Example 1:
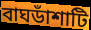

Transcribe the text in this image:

বাঘডাঁশাটি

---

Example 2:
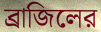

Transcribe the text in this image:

ব্রাজিলের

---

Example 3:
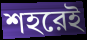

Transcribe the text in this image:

শহরেই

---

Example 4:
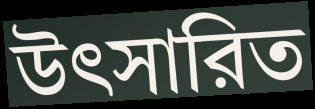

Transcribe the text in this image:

উৎসারিত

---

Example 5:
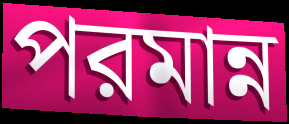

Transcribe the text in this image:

পরমান্ন